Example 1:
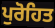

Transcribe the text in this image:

ਪੁਰੋਹਿਤ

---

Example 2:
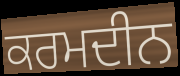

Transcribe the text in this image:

ਕਰਮਦੀਨ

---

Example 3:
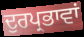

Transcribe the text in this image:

ਦੁਰਪ੍ਰਭਾਵਾਂ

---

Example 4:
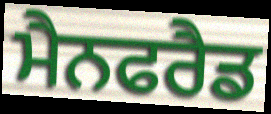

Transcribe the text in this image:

ਮੈਨਫਰੈਡ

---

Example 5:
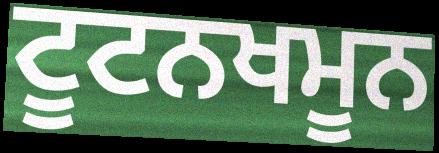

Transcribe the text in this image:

ਟੂਟਨਖਮੂਨ